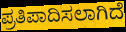
ಪ್ರತಿಪಾದಿಸಲಾಗಿದೆ